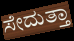
ಸೇದುತ್ತಾ